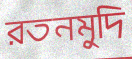
রতনমুদি